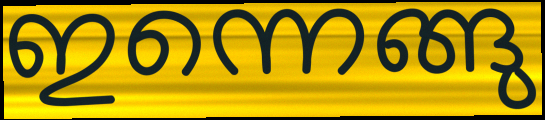
ഇന്നെങ്ങു